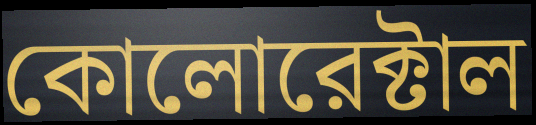
কোলোরেক্টাল